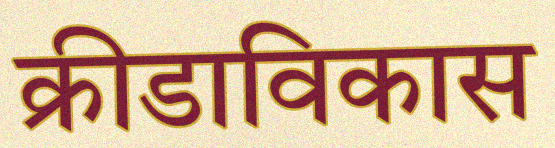
क्रीडाविकास